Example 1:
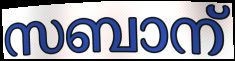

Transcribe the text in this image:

സബാന്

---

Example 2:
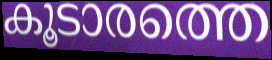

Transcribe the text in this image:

കൂടാരത്തെ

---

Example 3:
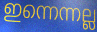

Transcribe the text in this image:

ഇന്നെന്നല്ല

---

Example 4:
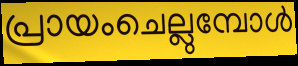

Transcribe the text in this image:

പ്രായംചെല്ലുമ്പോൾ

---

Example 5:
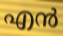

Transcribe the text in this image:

എൻ